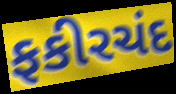
ફકીરચંદ